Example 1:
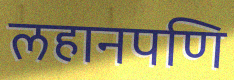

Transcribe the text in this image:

लहानपणि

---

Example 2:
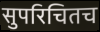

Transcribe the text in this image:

सुपरिचितच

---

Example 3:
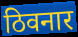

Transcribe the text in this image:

ठिवनार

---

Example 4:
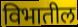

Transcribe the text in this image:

विभातील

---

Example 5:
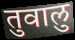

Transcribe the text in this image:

तुवालु